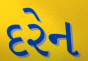
દરેન